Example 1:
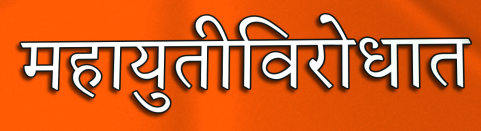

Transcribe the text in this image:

महायुतीविरोधात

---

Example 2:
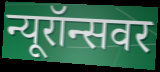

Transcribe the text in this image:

न्यूरॉन्सवर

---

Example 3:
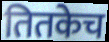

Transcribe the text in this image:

तितकेच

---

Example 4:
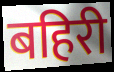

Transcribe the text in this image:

बहिरी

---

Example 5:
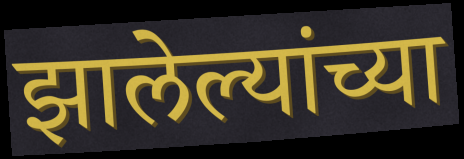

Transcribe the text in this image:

झालेल्यांच्या